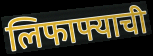
लिफाफ्याची